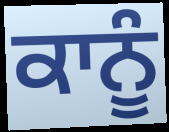
ਕਾਨੂੰ